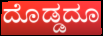
ದೊಡ್ಡದೂ